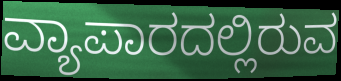
ವ್ಯಾಪಾರದಲ್ಲಿರುವ